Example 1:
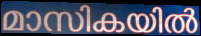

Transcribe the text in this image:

മാസികയിൽ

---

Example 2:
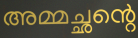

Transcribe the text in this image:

അമ്മച്ഛന്റെ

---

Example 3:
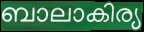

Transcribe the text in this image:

ബാലാകിര്യ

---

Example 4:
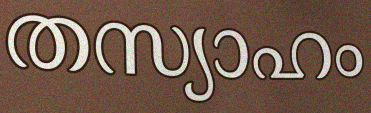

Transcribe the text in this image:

തസ്യാഹം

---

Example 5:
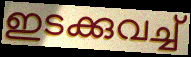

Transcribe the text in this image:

ഇടക്കുവച്ച്